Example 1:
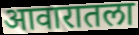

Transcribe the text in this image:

आवारातला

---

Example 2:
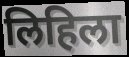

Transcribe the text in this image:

लिहिला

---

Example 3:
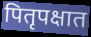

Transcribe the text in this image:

पितृपक्षात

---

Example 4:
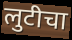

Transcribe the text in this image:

लुटीचा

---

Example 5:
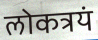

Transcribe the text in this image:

लोकत्रयं